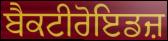
ਬੈਕਟੀਰੋਇਡਜ਼